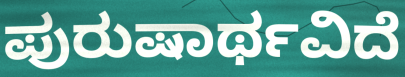
ಪುರುಷಾರ್ಥವಿದೆ